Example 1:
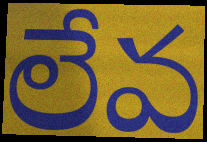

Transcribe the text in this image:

లేవ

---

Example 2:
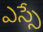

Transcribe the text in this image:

ఎస్సే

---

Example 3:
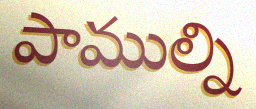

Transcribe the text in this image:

పాముల్ని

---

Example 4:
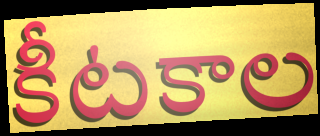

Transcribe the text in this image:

కీటకాల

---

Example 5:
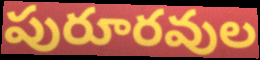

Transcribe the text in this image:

పురూరవుల